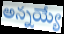
అన్నయ్యే